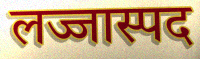
लज्जास्पद